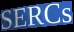
SERCs